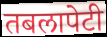
तबलापेटी